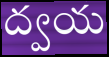
ద్వయ